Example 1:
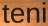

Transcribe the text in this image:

teni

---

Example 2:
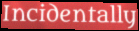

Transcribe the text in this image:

Incidentally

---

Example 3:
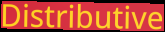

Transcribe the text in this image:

Distributive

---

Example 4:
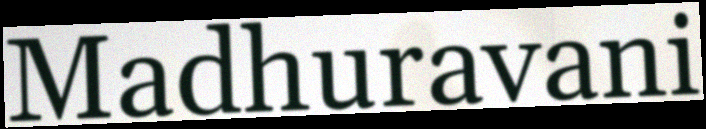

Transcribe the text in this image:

Madhuravani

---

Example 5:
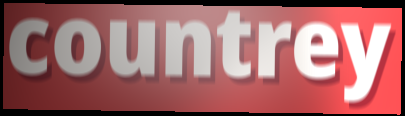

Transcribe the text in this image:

countrey